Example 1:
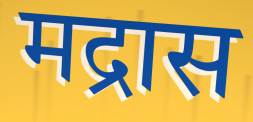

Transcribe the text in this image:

मद्रास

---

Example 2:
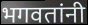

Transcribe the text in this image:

भगवतांनी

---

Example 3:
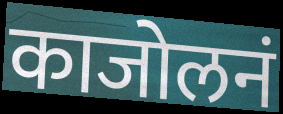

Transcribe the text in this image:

काजोलनं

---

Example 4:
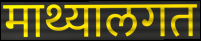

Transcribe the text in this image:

माथ्यालगत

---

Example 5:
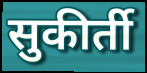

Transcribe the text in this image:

सुकीर्ती